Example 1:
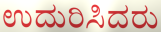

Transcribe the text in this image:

ಉದುರಿಸಿದರು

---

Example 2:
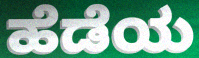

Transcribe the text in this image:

ಹೆಡೆಯ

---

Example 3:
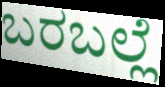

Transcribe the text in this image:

ಬರಬಲ್ಲೆ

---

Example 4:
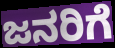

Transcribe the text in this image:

ಜನರಿಗೆ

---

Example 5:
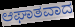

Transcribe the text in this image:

ಆಘಾತವಾದ